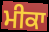
ਮੀਕਾ